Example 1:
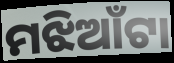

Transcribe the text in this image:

ମଝିଆଁଟା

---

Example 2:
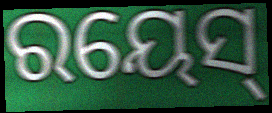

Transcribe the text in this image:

ରୟେସ୍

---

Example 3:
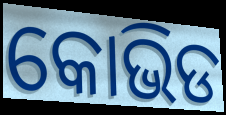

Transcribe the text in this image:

କୋଭିଡ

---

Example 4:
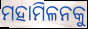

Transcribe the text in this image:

ମହାମିଳନକୁ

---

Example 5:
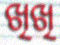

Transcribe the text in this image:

ଖିଖି